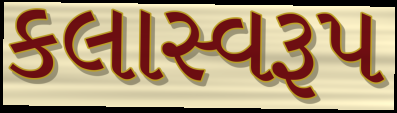
કલાસ્વરૂપ